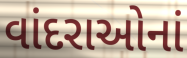
વાંદરાઓનાં